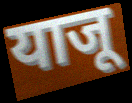
याजू